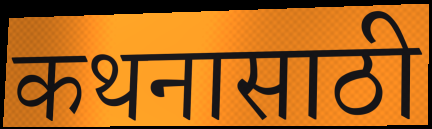
कथनासाठी